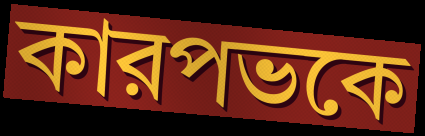
কারপভকে